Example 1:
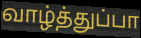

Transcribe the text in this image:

வாழ்த்துப்பா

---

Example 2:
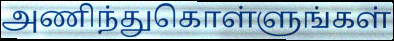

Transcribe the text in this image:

அணிந்துகொள்ளுங்கள்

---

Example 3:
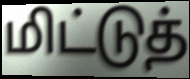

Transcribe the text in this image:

மிட்டுத்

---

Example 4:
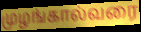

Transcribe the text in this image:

முழங்கால்வரை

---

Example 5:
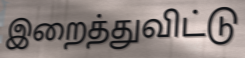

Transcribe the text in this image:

இறைத்துவிட்டு